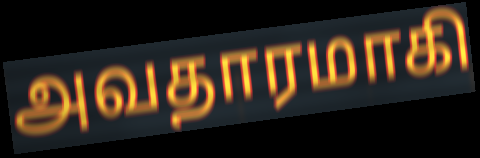
அவதாரமாகி